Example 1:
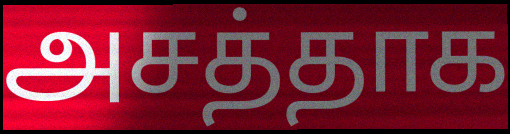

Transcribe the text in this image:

அசத்தாக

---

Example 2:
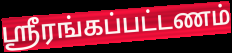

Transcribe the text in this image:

ஸ்ரீரங்கப்பட்டணம்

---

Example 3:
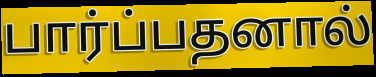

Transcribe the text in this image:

பார்ப்பதனால்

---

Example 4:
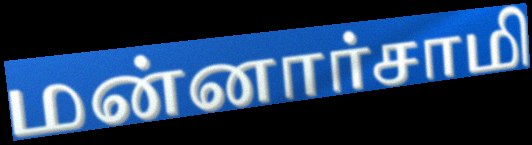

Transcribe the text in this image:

மன்னார்சாமி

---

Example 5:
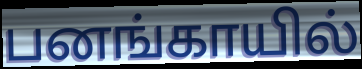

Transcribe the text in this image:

பனங்காயில்